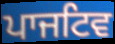
ਪਾਜਟਿਵ